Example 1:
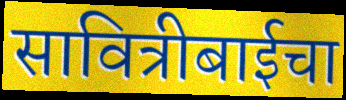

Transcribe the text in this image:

सावित्रीबाईचा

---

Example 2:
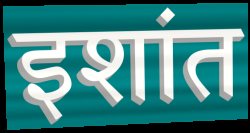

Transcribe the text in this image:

इशांत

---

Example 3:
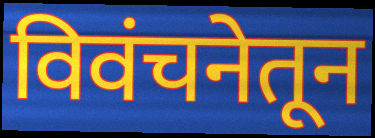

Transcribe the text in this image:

विवंचनेतून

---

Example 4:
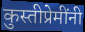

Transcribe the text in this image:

कुस्तीप्रेमींनी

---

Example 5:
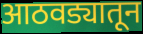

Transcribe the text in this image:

आठवड्यातून